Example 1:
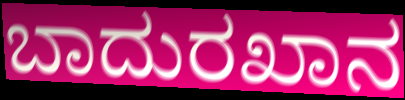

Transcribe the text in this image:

ಬಾದುರಖಾನ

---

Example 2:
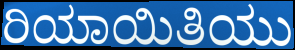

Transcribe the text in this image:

ರಿಯಾಯಿತಿಯು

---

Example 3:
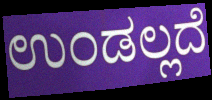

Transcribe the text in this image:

ಉಂಡಲ್ಲದೆ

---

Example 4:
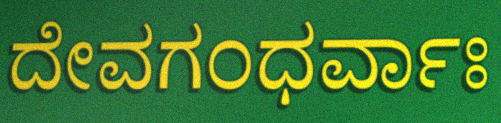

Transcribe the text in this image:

ದೇವಗಂಧರ್ವಾಃ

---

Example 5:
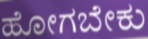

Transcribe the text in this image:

ಹೋಗಬೇಕು